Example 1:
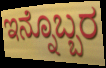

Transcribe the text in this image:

ಇನ್ನೊಬ್ಬರ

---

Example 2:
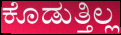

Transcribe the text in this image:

ಕೊಡುತ್ತಿಲ್ಲ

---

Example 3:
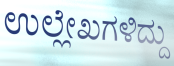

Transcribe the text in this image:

ಉಲ್ಲೇಖಗಳಿದ್ದು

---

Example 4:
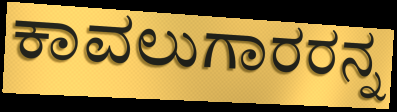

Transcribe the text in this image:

ಕಾವಲುಗಾರರನ್ನ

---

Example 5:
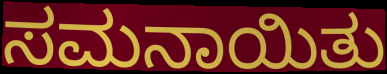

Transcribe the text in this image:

ಸಮನಾಯಿತು